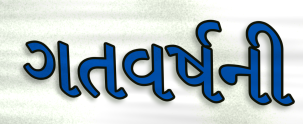
ગતવર્ષની